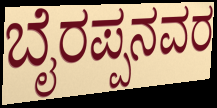
ಬೈರಪ್ಪನವರ